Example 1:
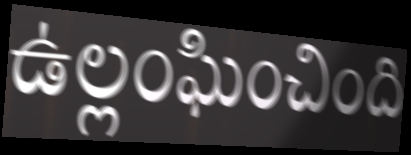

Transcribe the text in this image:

ఉల్లంఘించింది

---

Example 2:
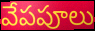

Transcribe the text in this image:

వేపపూలు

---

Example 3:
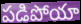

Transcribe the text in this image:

పడిపోయా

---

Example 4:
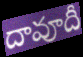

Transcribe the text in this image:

దావూదీ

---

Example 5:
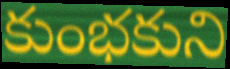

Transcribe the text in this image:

కుంభకుని